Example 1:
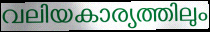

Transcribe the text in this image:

വലിയകാര്യത്തിലും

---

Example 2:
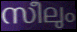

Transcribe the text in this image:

സീലും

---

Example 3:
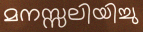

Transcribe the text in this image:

മനസ്സലിയിച്ചു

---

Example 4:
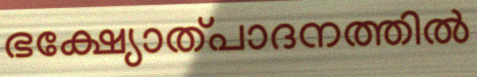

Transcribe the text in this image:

ഭക്ഷ്യോത്പാദനത്തിൽ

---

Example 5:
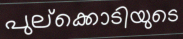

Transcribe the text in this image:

പുല്ക്കൊടിയുടെ